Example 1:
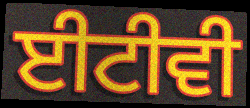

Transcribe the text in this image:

ਈਟੀਵੀ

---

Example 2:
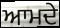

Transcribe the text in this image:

ਆਮਦੇ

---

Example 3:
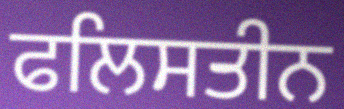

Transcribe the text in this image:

ਫਲਿਸਤੀਨ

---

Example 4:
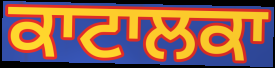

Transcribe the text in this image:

ਕਾਟਾਲਕਾ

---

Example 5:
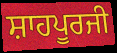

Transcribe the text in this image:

ਸ਼ਾਹਪੂਰਜੀ